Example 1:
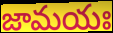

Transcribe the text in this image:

జామయః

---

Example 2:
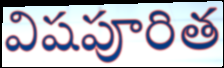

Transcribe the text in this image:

విషపూరిత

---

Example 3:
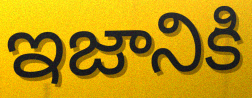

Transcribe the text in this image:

ఇజానికి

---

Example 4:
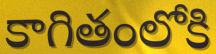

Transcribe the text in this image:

కాగితంలోకి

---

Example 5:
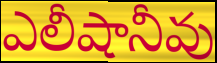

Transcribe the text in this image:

ఎలీషానీవు